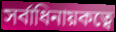
সর্বাধিনায়কত্বে